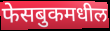
फेसबुकमधील